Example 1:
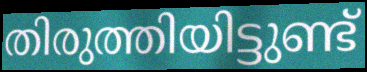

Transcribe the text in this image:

തിരുത്തിയിട്ടുണ്ട്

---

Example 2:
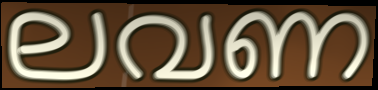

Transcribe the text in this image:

ലവണ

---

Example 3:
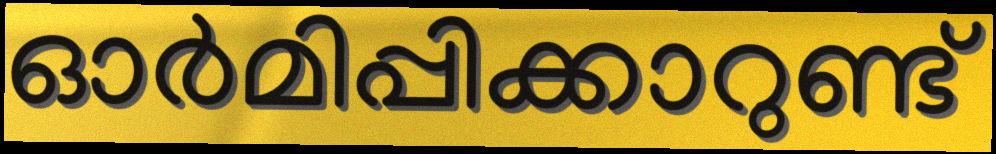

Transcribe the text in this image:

ഓർമിപ്പിക്കാറുണ്ട്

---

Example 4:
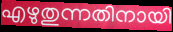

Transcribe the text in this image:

എഴുതുന്നതിനായി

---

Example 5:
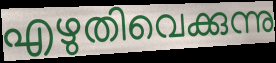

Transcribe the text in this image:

എഴുതിവെക്കുന്നു